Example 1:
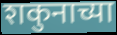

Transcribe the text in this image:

शकुनाच्या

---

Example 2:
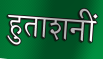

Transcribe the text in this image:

हुताशनीं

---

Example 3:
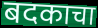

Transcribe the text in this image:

बदकाचा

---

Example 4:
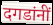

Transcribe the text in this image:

दगडांनीं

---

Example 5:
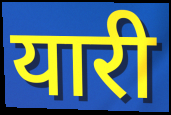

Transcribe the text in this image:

यारी